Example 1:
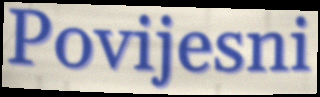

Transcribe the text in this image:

Povijesni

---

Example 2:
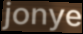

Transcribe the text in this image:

jonye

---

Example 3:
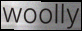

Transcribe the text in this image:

woolly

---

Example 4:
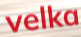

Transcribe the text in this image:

velka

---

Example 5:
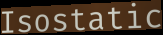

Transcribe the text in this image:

Isostatic